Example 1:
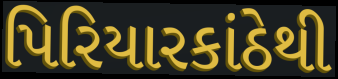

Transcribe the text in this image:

પિરિયારકાંઠેથી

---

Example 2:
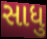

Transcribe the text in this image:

સાધુ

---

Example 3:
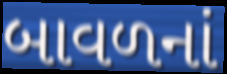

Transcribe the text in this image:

બાવળનાં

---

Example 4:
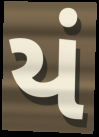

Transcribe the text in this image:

યં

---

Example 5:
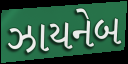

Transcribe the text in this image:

ઝાયનેબ